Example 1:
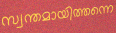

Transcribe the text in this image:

സ്വന്തമായിത്തന്നെ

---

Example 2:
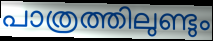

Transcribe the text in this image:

പാത്രത്തിലുണ്ടും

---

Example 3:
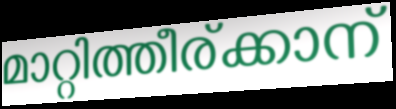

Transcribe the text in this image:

മാറ്റിത്തീര്ക്കാന്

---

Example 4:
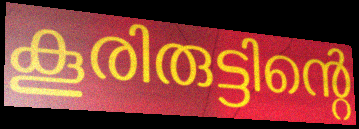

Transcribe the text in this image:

കൂരിരുട്ടിന്റെ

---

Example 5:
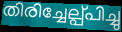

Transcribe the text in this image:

തിരിച്ചേല്പ്പിച്ചു